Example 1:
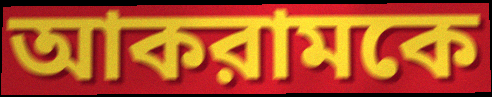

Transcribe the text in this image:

আকরামকে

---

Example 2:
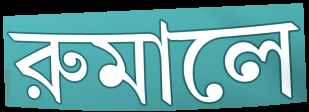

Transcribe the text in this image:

রুমালে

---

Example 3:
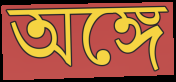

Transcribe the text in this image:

অঙ্গে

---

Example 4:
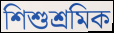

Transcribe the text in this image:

শিশুশ্রমিক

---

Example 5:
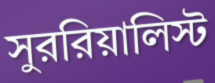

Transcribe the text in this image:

সুররিয়ালিস্ট